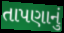
તાપણાનું